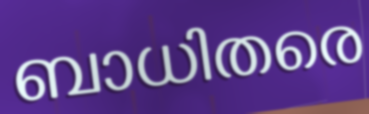
ബാധിതരെ